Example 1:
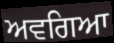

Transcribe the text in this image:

ਅਵਗਿਆ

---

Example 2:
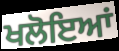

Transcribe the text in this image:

ਖਲੋਇਆਂ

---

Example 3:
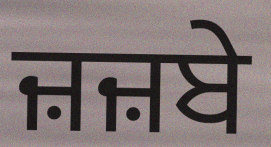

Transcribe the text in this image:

ਜ਼ਜ਼ਬੇ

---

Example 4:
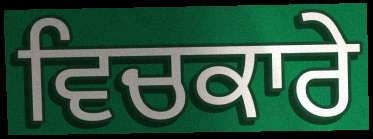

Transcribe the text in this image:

ਵਿਚਕਾਰੇ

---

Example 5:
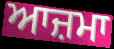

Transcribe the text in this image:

ਆਜ਼ਮਾ